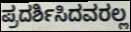
ಪ್ರದರ್ಶಿಸಿದವರಲ್ಲ